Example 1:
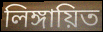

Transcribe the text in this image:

লিঙ্গায়িত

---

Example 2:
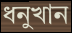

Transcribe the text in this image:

ধনুখান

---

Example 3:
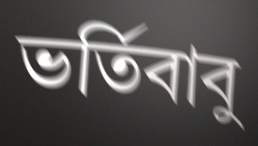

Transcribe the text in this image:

ভর্তিবাবু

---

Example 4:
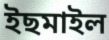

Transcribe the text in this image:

ইছমাইল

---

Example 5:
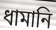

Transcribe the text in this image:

ধামানি